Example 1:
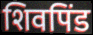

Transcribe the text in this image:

शिवपिंड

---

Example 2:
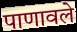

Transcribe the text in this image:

पाणावले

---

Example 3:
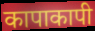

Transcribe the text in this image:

कापाकापी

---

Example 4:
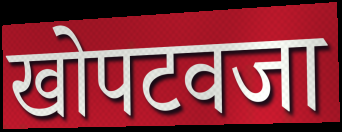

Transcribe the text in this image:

खोपटवजा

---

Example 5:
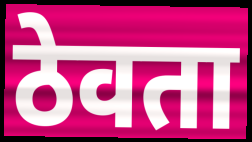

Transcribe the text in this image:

ठेवता